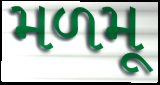
મળમૂ